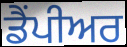
ਡੈਂਪੀਅਰ